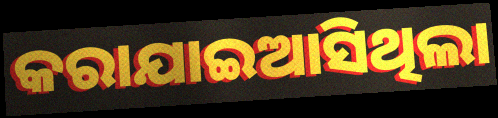
କରାଯାଇଆସିଥିଲା